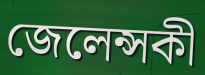
জেলেন্সকী